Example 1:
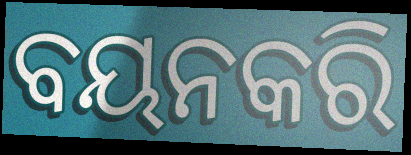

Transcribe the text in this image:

ବୟନକରି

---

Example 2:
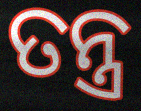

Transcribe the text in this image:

ତନ୍ତ୍ର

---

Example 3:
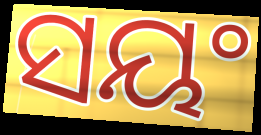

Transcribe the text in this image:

ସୟଂ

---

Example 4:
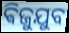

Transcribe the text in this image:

ଵିଜୁଯୁବ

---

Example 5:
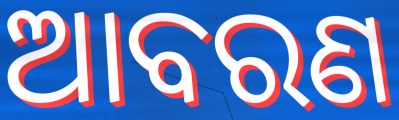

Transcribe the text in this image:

ଆବରଣ